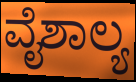
ವೈಶಾಲ್ಯ